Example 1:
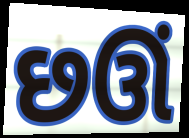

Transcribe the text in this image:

છઊં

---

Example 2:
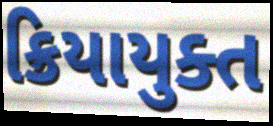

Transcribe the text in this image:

ક્રિયાયુક્ત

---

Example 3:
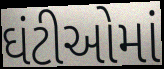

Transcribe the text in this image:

ઘંટીઓમાં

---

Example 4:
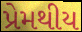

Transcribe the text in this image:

પ્રેમથીય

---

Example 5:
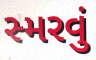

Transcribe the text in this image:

સ્મરવું